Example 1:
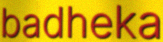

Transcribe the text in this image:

badheka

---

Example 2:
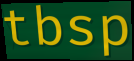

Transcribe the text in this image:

tbsp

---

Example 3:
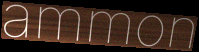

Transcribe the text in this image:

ammon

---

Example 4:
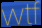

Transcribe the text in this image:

wtf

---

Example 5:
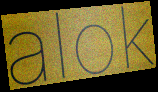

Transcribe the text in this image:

alok